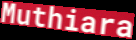
Muthiara